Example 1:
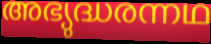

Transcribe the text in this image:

അഭ്യുദ്ധരന്നഥ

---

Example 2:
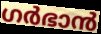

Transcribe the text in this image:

ഗർഭാൻ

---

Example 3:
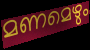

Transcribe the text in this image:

മണമെഴും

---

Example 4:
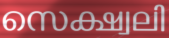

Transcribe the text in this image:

സെക്ഷ്വലി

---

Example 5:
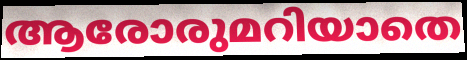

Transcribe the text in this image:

ആരോരുമറിയാതെ